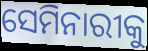
ସେମିନାରୀକୁ